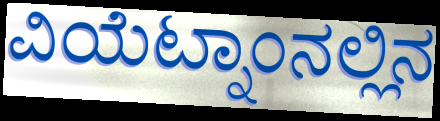
ವಿಯೆಟ್ನಾಂನಲ್ಲಿನ